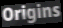
Origins